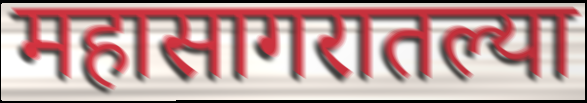
महासागरातल्या